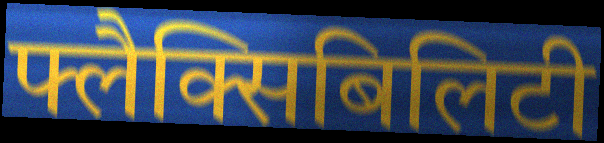
फ्लैक्सिबिलिटी